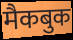
मैकबुक